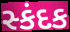
સ્કંદક